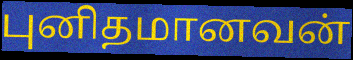
புனிதமானவன்